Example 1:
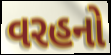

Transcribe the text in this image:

વરહનો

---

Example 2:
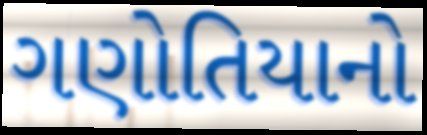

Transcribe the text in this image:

ગણોતિયાનો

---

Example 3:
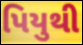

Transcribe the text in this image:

પિયુથી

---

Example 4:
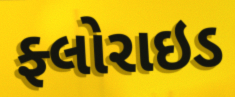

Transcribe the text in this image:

ફ્લોરાઇડ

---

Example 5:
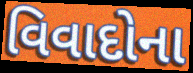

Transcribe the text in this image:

વિવાદોના